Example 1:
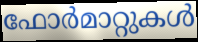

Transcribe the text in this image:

ഫോർമാറ്റുകൾ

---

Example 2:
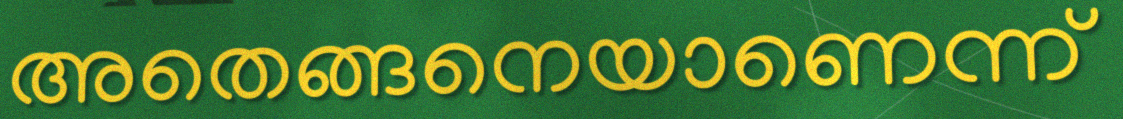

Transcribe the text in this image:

അതെങ്ങനെയാണെന്ന്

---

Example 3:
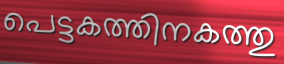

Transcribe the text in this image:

പെട്ടകത്തിനകത്തു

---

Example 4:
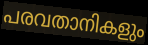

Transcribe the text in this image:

പരവതാനികളും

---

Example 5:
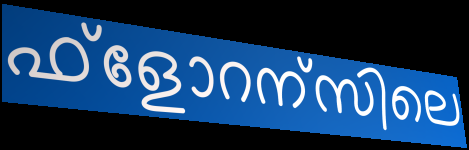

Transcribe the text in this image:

ഫ്ളോറന്സിലെ